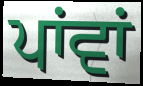
ਪਾਂਵਾਂ